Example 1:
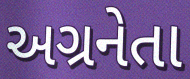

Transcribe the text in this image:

અગ્રનેતા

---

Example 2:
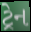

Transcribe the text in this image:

ટ્રેન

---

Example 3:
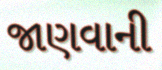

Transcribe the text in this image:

જાણવાની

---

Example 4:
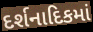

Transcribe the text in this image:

દર્શનાદિકમાં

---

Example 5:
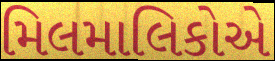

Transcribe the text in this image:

મિલમાલિકોએ